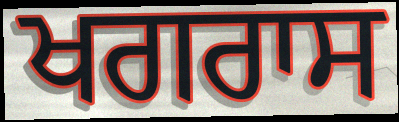
ਖਗਰਾਸ